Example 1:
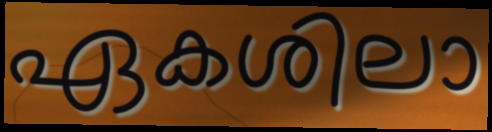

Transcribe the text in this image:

ഏകശിലാ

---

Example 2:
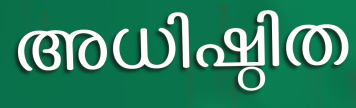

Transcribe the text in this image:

അധിഷ്ഠിത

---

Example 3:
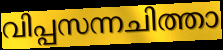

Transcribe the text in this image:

വിപ്പസന്നചിത്താ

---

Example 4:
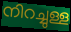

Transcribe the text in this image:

നിറച്ചുള്ള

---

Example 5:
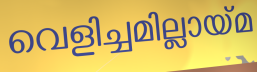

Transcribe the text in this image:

വെളിച്ചമില്ലായ്മ